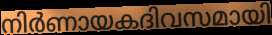
നിർണായകദിവസമായി